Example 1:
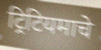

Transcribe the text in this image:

ट्रिटियमाचे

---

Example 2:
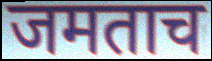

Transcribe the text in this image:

जमताच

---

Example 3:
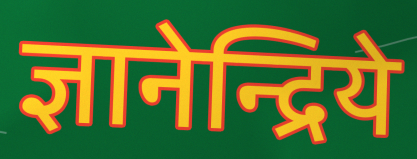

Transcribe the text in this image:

ज्ञानेन्द्रिये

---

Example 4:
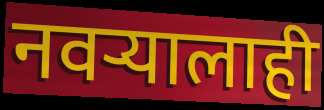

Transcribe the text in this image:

नवऱ्यालाही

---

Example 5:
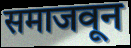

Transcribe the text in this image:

समाजवून